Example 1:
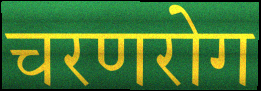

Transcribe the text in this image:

चरणरोग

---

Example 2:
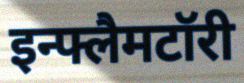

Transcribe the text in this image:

इन्फ्लैमटॉरी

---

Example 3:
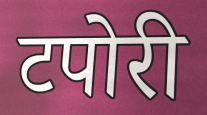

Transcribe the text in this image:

टपोरी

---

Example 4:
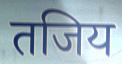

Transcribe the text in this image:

तजिय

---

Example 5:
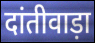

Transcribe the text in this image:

दांतीवाड़ा